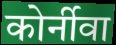
कोर्नीवा